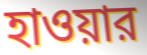
হাওয়ার